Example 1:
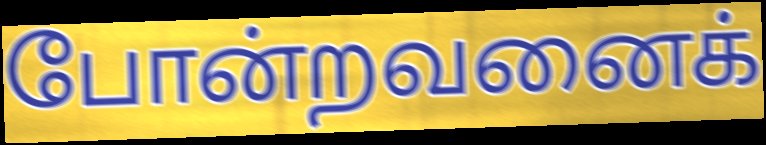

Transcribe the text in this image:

போன்றவனைக்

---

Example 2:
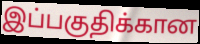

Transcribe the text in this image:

இப்பகுதிக்கான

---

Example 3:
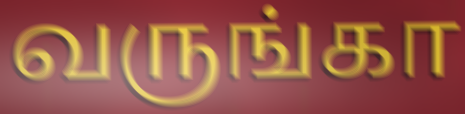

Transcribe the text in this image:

வருங்கா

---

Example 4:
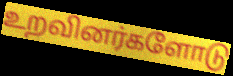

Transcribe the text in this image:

உறவினர்களோடு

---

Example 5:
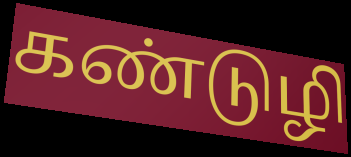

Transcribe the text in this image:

கண்டுழி